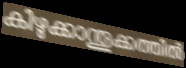
കിഴുക്കാന്തൂക്കത്തിൽ